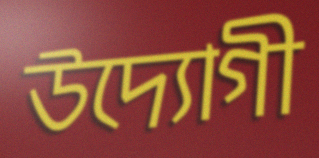
উদ্যোগী